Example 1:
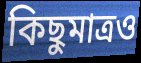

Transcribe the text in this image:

কিছুমাত্রও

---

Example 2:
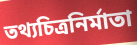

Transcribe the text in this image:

তথ্যচিত্রনির্মাতা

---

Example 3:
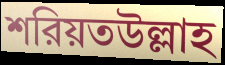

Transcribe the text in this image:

শরিয়তউল্লাহ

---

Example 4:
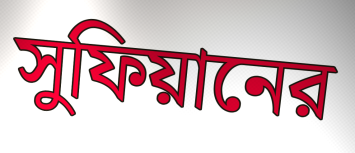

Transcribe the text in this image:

সুফিয়ানের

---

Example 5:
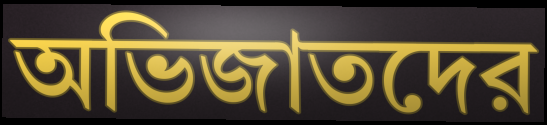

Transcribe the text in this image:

অভিজাতদের